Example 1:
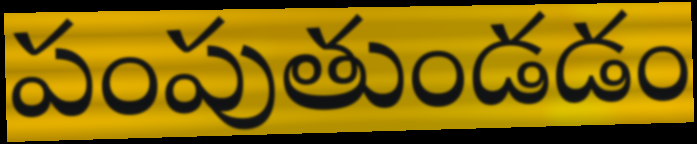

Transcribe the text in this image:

పంపుతుండడం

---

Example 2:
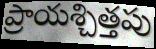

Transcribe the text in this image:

ప్రాయశ్చిత్తపు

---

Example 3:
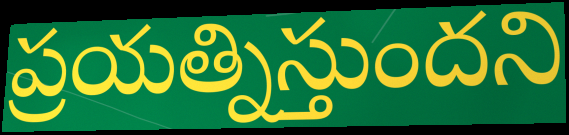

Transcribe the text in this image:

ప్రయత్నిస్తుందని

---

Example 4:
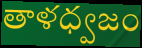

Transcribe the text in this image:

తాళధ్వజం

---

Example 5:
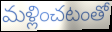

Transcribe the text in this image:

మళ్లించటంతో